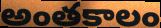
అంతకాలం